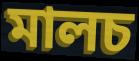
মালচ